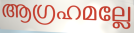
ആഗ്രഹമല്ലേ